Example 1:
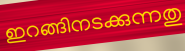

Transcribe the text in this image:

ഇറങ്ങിനടക്കുന്നതു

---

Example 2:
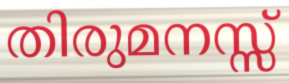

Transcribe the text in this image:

തിരുമനസ്സ്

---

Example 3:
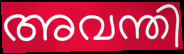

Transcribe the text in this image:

അവന്തി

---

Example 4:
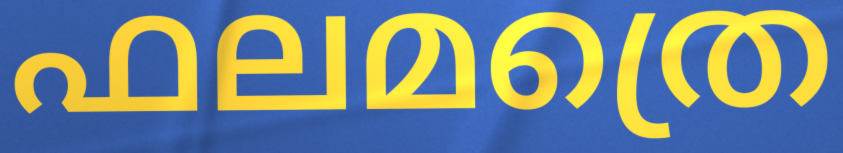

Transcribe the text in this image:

ഫലമത്രെ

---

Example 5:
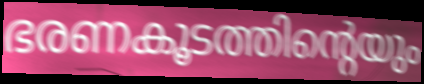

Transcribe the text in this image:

ഭരണകൂടത്തിന്റെയും